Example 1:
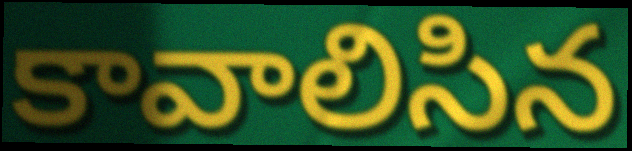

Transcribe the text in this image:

కావాలిసిన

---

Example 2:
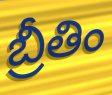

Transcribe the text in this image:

బ్రీతిం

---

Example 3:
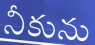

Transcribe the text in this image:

నీకును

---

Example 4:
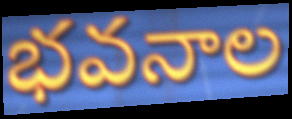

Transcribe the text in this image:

భవనాల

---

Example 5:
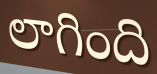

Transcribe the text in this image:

లాగింది